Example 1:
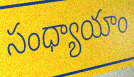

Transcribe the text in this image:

సంధ్యాయాం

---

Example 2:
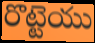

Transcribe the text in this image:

రొట్టెయు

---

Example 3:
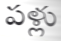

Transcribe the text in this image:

పళ్లు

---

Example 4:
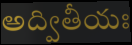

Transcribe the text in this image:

అద్వితీయః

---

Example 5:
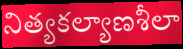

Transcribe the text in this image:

నిత్యకల్యాణశీలా